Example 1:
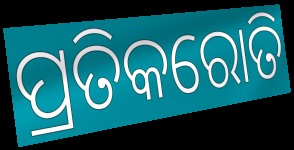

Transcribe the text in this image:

ପ୍ରତିକରୋତି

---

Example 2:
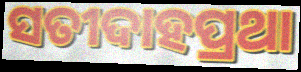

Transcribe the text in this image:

ସତୀଦାହପ୍ରଥା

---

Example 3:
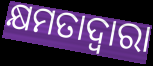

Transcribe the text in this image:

କ୍ଷମତାଦ୍ୱାରା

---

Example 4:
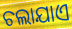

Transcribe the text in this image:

ଚଲାଯାଏ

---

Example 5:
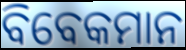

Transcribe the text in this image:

ବିବେକମାନ